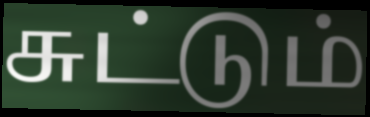
சுட்டும்